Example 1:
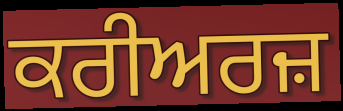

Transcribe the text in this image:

ਕਰੀਅਰਜ਼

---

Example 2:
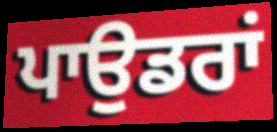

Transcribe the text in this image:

ਪਾਉਡਰਾਂ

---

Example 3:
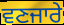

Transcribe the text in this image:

ਵਣਜਾਰੇ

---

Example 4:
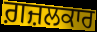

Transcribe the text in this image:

ਗ਼ਜ਼ਲਕਾਰ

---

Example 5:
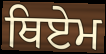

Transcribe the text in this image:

ਥਿਏਮ